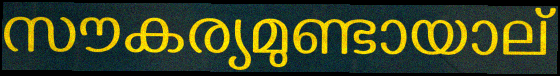
സൗകര്യമുണ്ടായാല്